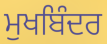
ਮੁਖਬਿੰਦਰ